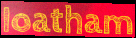
Ioatham